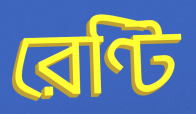
রেণ্টি